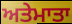
ਅਤੇਮਾਤਾ